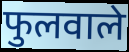
फुलवाले